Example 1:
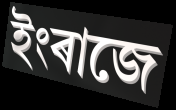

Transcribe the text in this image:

ইংৰাজে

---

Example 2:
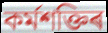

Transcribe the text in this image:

কৰ্মশক্তিৰ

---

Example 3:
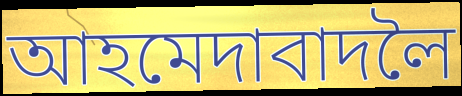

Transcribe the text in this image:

আহমেদাবাদলৈ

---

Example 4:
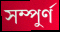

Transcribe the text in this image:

সম্পুৰ্ণ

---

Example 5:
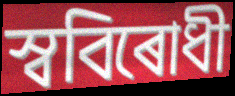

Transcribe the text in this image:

স্ববিৰোধী